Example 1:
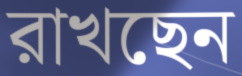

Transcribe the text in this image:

রাখছেন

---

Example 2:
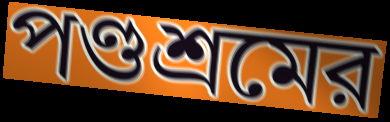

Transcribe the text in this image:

পণ্ডশ্রমের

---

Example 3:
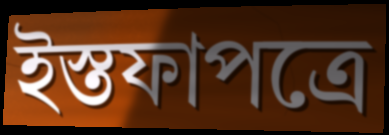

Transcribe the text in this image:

ইস্তফাপত্রে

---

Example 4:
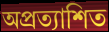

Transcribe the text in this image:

অপ্রত্যাশিত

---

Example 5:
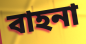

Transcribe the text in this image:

বাহনা